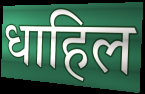
धाहिल